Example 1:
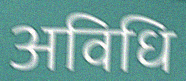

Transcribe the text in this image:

अविधि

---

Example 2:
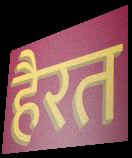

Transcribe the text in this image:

हैरत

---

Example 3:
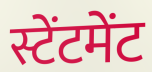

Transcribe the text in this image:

स्टेंटमेंट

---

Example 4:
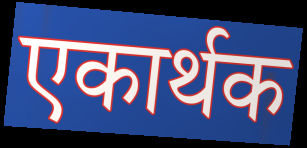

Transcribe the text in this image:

एकार्थक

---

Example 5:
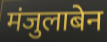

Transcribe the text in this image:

मंजुलाबेन